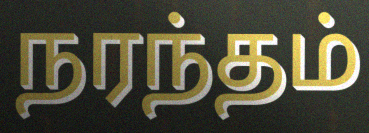
நரந்தம்